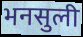
भनसुली